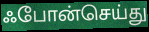
ஃபோன்செய்து